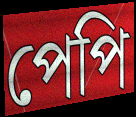
পেপি